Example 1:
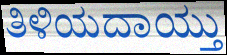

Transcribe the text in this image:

ತಿಳಿಯದಾಯ್ತು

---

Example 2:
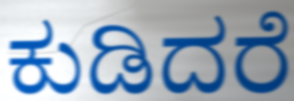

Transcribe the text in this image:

ಕುಡಿದರೆ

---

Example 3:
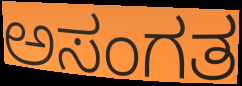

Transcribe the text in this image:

ಅಸಂಗತ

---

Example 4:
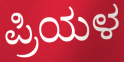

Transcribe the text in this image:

ಪ್ರಿಯಳ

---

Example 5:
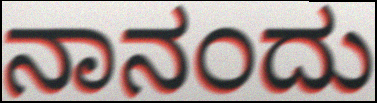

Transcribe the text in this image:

ನಾನಂದು